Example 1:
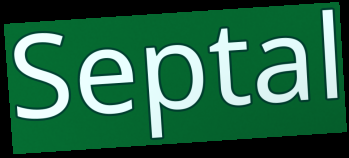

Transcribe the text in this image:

Septal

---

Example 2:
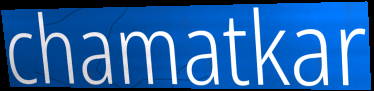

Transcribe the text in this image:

chamatkar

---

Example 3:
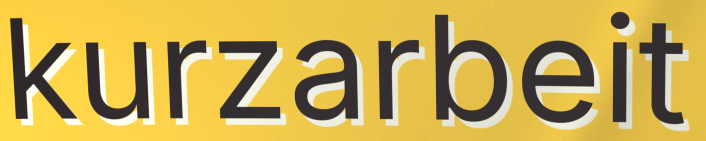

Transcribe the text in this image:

kurzarbeit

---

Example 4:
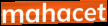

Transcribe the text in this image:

mahacet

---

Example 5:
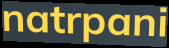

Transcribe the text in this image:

natrpani